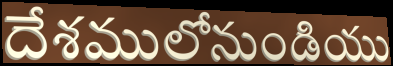
దేశములోనుండియు